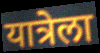
यात्रेला